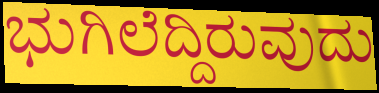
ಭುಗಿಲೆದ್ದಿರುವುದು